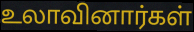
உலாவினார்கள்